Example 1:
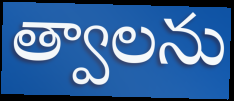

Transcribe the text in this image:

త్వాలను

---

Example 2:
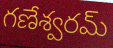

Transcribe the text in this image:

గణేశ్వరమ్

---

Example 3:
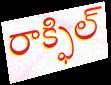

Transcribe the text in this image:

రాక్ఫిల్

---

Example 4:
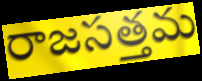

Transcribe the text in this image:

రాజసత్తమ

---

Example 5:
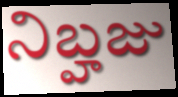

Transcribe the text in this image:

నిబ్హజు